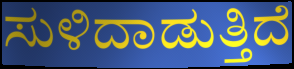
ಸುಳಿದಾಡುತ್ತಿದೆ